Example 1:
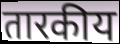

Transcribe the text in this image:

तारकीय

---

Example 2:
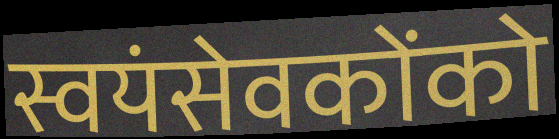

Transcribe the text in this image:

स्वयंसेवकोंको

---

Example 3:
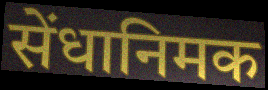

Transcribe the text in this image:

सेंधानिमक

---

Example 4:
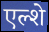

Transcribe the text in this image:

एल्शे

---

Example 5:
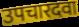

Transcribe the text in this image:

उपचारदवा